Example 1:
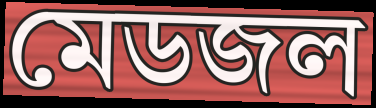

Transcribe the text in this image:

মেডজল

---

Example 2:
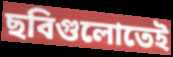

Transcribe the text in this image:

ছবিগুলোতেই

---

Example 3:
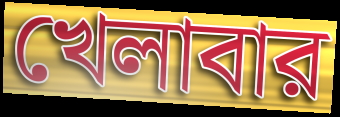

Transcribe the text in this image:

খেলাবার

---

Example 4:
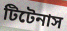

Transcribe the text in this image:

টিটেনাস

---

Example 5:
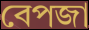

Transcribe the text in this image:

বেপজা